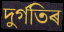
দুৰ্গতিৰ